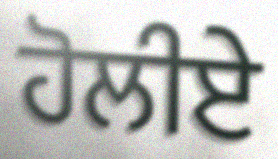
ਹੋਲੀਏ